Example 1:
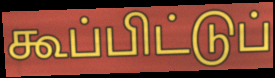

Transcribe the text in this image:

கூப்பிட்டுப்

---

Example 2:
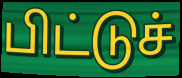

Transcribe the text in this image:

பிட்டுச்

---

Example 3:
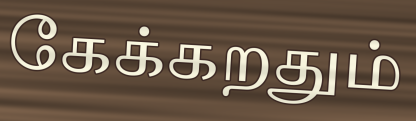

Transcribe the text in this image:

கேக்கறதும்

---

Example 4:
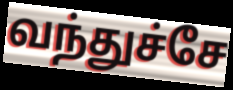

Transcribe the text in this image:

வந்துச்சே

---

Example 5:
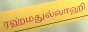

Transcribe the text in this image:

ரஹ்மதுல்லாஹி